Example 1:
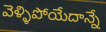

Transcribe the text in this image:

వెళ్ళిపోయేదాన్నే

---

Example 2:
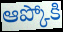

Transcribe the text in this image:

ఆప్కోకి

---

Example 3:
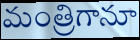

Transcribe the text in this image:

మంత్రిగానూ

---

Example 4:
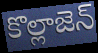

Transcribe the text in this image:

కొల్లాజెన్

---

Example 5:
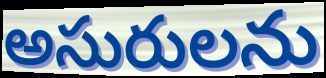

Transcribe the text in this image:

అసురులను